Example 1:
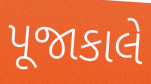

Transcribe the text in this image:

પૂજાકાલે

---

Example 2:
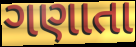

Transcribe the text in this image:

ગણાતા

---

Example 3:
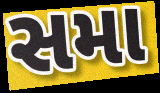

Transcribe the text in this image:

સમા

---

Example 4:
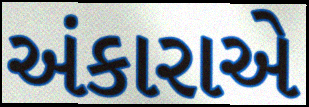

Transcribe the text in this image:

અંકારાએ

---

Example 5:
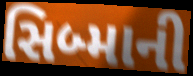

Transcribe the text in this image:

સિબ્માની